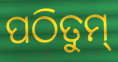
ପଠିତୁମ୍